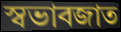
স্বভাবজাত